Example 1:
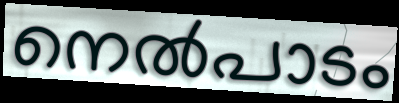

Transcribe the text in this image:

നെൽപാടം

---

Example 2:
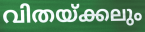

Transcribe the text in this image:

വിതയ്ക്കലും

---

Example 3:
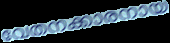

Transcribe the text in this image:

വേതനക്കാരനായ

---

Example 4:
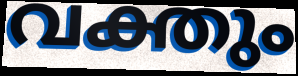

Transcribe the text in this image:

വക്തും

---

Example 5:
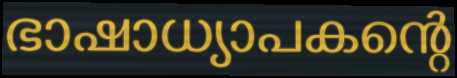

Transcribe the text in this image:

ഭാഷാധ്യാപകന്റെ